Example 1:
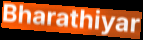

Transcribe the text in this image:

Bharathiyar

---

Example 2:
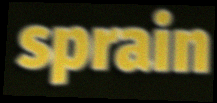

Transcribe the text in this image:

sprain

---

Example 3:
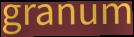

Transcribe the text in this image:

granum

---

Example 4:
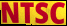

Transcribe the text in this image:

NTSC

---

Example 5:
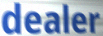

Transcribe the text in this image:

dealer